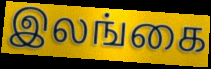
இலங்கை